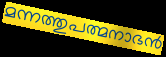
മന്നത്തുപത്മനാഭൻ